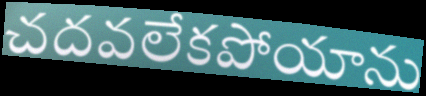
చదవలేకపోయాను